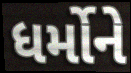
ધર્મોને